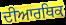
ਦੀਆਰਥਿਕ